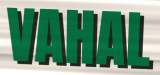
VAHAL